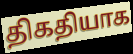
திகதியாக